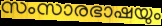
സംസാരഭാഷയും